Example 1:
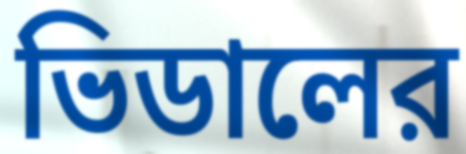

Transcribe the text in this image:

ভিডালের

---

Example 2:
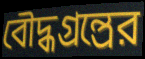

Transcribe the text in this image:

বৌদ্ধগ্রন্ত্রের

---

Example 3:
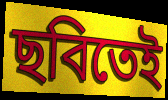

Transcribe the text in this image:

ছবিতেই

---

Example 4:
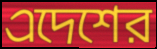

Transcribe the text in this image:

এদেশের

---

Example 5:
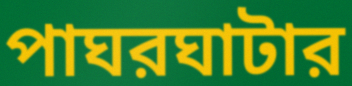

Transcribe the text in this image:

পাঘরঘাটার